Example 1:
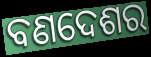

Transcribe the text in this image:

ବଣଦେଶର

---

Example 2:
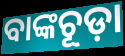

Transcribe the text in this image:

ବାଙ୍କଚୂଡ଼ା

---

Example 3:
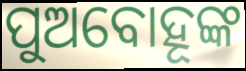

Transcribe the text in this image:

ପୁଅବୋହୂଙ୍କ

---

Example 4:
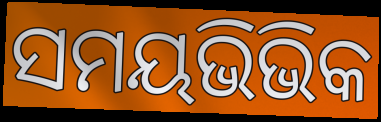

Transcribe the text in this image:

ସମୟଭିଭିକ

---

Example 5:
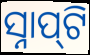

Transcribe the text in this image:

ସ୍ନାପ୍‍ଟି